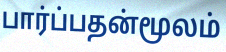
பார்ப்பதன்மூலம்